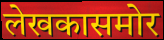
लेखकासमोर